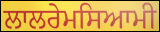
ਲਾਲਰੇਮਸਿਆਮੀ